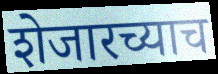
शेजारच्याच